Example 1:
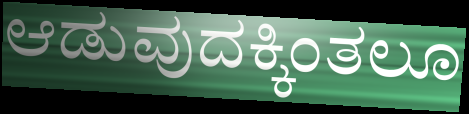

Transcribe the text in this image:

ಆಡುವುದಕ್ಕಿಂತಲೂ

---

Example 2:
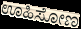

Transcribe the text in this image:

ಊಹಿಸೋಣ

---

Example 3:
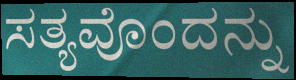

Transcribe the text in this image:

ಸತ್ಯವೊಂದನ್ನು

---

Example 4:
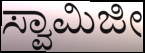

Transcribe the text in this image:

ಸ್ವಾಮಿಜೀ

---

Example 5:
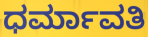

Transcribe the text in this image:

ಧರ್ಮಾವತಿ